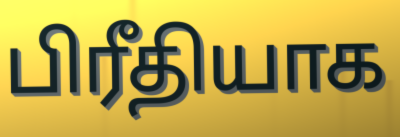
பிரீதியாக